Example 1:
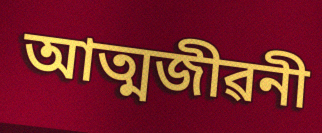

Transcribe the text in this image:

আত্মজীৱনী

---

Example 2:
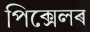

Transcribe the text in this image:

পিক্সেলৰ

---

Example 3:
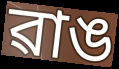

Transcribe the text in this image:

ৱাঙ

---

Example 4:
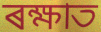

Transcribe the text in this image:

ৰক্ষাত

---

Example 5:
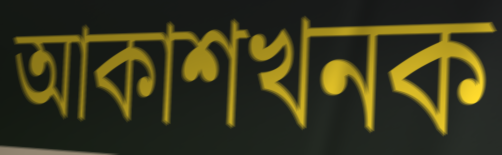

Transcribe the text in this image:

আকাশখনক